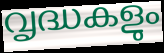
വൃദ്ധകളും